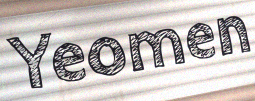
Yeomen